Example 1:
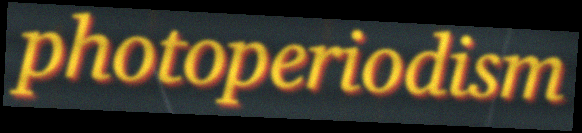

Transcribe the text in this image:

photoperiodism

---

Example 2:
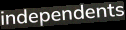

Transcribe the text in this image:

independents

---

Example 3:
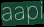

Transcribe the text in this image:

aapi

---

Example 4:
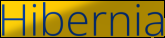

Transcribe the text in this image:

Hibernia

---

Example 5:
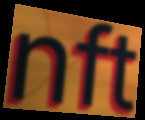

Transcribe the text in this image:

nft